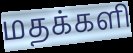
மதக்களி